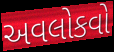
અવલોકવો